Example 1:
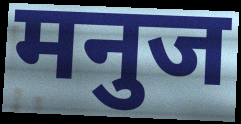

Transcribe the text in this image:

मनुज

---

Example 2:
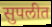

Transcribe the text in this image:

सुपलीत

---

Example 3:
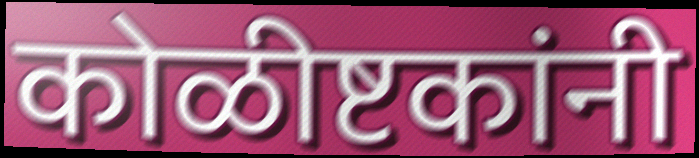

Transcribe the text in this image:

कोळीष्टकांनी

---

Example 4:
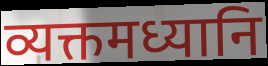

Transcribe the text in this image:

व्यक्तमध्यानि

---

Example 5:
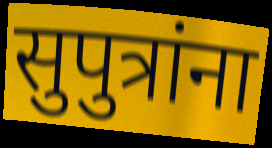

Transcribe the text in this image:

सुपुत्रांना